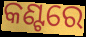
କଣ୍ଟରେ